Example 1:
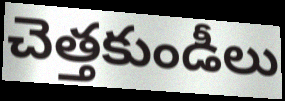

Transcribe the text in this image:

చెత్తకుండీలు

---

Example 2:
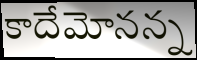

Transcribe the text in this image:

కాదేమోనన్న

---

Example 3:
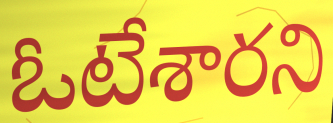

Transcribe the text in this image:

ఓటేశారని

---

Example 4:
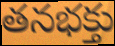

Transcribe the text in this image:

తనభక్తు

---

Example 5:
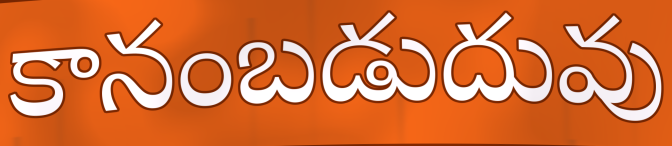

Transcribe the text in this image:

కానంబడుదువు